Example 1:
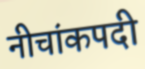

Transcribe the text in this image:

नीचांकपदी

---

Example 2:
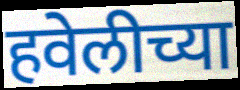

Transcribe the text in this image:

हवेलीच्या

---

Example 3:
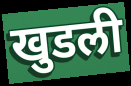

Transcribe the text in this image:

खुडली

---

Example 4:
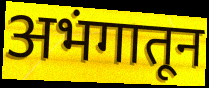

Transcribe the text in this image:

अभंगातून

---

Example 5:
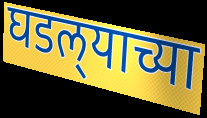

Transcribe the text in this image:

घडल्याच्या